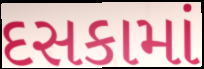
દસકામાં